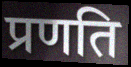
प्रणति